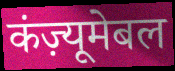
कंज़्यूमेबल